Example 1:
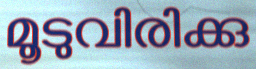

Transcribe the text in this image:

മൂടുവിരിക്കു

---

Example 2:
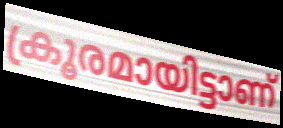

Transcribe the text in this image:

ക്രൂരമായിട്ടാണ്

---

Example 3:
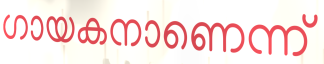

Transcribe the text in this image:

ഗായകനാണെന്ന്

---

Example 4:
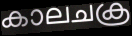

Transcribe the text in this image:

കാലചക്ര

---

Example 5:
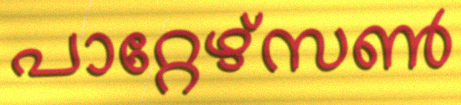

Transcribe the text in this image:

പാറ്റേഴ്സൺ